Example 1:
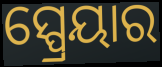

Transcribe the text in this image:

ସ୍ପ୍ରେୟାର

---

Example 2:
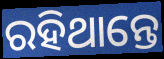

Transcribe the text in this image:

ରହିଥାନ୍ତେ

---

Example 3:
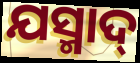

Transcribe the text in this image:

ଯସ୍ମାଦ୍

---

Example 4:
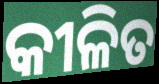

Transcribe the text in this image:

କୀଳିତ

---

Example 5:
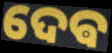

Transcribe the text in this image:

ଦେଵ